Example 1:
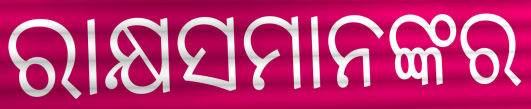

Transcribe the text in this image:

ରାକ୍ଷସମାନଙ୍କର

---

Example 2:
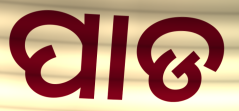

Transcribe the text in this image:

ପାଡ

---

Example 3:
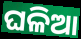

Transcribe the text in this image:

ଘଳିଆ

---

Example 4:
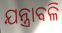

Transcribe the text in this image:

ଯନ୍ତ୍ରାବଳି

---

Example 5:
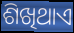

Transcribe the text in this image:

ଶିଖିଥାଏ